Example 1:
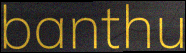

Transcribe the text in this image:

banthu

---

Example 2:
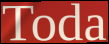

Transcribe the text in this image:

Toda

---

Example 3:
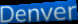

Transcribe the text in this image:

Denver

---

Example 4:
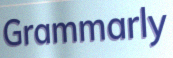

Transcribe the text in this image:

Grammarly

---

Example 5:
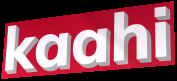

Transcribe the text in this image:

kaahi